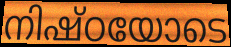
നിഷ്ഠയോടെ